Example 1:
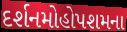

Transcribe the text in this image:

દર્શનમોહોપશમના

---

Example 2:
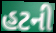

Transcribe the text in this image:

હટની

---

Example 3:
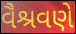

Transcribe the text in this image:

વૈશ્રવણે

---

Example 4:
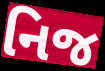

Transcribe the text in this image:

નિજ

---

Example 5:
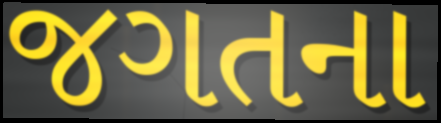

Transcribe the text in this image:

જગતના